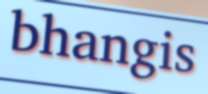
bhangis